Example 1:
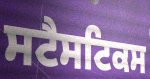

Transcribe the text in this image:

ਸਟੈਸਟਿਕਸ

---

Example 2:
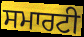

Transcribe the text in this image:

ਸਮਾਰਟੀ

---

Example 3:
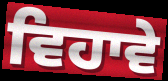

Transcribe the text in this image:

ਵਿਹਾਵੇ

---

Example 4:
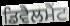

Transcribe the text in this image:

ਡਿਵੈਲਮੈਂਟ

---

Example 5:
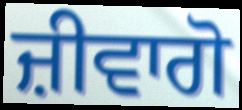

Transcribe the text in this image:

ਜ਼ੀਵਾਗੋ